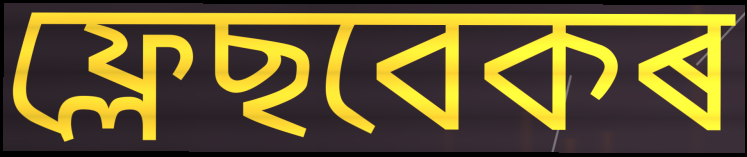
ফ্লেছবেকৰ